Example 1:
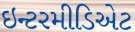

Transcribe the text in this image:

ઇન્ટરમીડિએટ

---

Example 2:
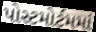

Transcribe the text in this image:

પોસ્ટમોર્ટમમાં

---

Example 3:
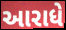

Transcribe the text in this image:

આરાધે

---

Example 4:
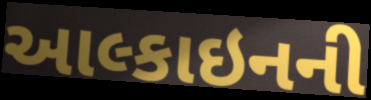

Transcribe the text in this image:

આલ્કાઇનની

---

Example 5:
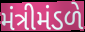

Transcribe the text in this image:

મંત્રીમંડળે